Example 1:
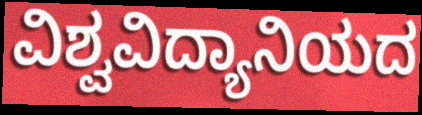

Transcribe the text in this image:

ವಿಶ್ವವಿದ್ಯಾನಿಯದ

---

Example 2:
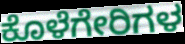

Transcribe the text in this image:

ಕೊಳೆಗೇರಿಗಳ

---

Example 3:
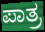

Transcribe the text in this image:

ಪಾತ್ರ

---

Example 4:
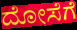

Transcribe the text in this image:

ದೋಸೆಗೆ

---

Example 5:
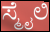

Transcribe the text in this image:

ಸ್ಮೈಲಿ